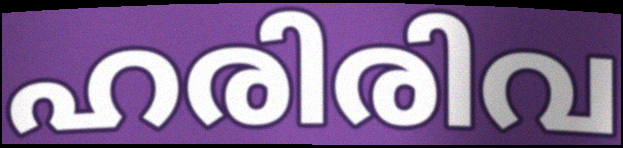
ഹരിരിവ